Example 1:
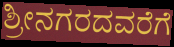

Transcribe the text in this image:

ಶ್ರೀನಗರದವರೆಗೆ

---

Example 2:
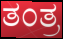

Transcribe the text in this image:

ತಂತ್ರ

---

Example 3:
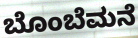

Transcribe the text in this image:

ಬೊಂಬೆಮನೆ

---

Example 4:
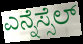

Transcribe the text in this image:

ಎನ್ನೆಸ್ಸೆಲ್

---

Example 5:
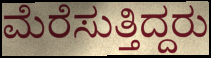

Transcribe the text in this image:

ಮೆರೆಸುತ್ತಿದ್ದರು